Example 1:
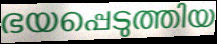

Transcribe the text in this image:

ഭയപ്പെടുത്തിയ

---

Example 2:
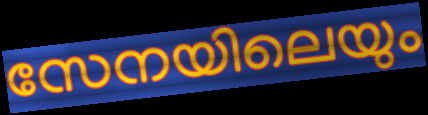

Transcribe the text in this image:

സേനയിലെയും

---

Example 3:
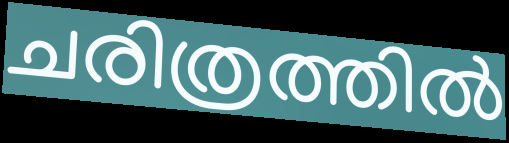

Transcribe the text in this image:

ചരിത്രത്തിൽ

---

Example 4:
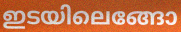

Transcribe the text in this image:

ഇടയിലെങ്ങോ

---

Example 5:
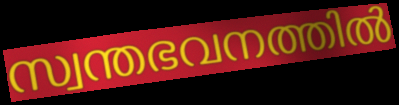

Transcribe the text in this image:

സ്വന്തഭവനത്തിൽ